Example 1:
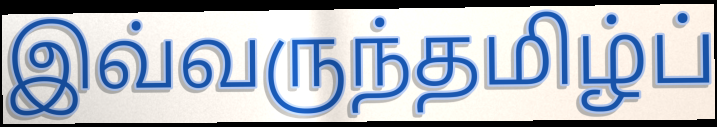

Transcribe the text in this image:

இவ்வருந்தமிழ்ப்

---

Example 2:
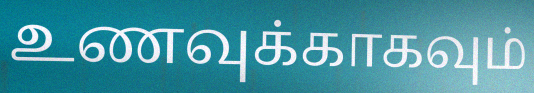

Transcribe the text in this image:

உணவுக்காகவும்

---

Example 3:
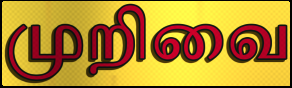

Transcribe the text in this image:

முறிவை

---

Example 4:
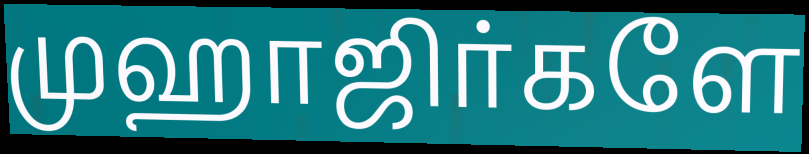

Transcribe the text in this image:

முஹாஜிர்களே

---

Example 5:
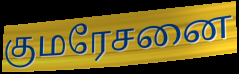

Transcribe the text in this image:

குமரேசனை